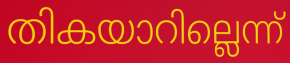
തികയാറില്ലെന്ന്